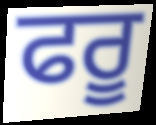
ਫਰੂ